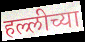
हल्लीच्या